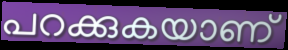
പറക്കുകയാണ്